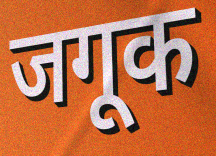
जगूक